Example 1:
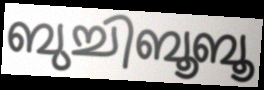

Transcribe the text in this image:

ബുച്ചിബൂബൂ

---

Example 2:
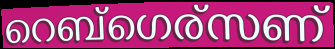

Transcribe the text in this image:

റെബ്ഗെര്സണ്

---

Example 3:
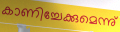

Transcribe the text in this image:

കാണിച്ചേക്കുമെന്നു്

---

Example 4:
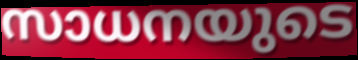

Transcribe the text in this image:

സാധനയുടെ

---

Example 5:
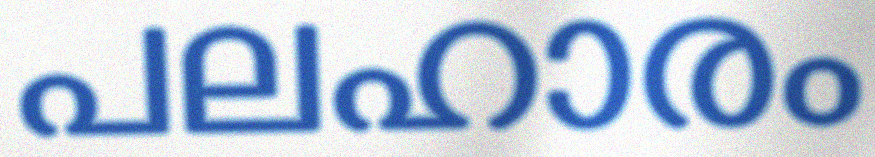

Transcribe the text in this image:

പലഹാരം